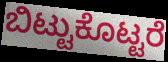
ಬಿಟ್ಟುಕೊಟ್ಟರೆ